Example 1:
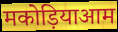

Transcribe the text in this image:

मकोड़ियाआम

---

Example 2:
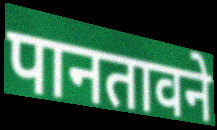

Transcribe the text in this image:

पानतावने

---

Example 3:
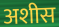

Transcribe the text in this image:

अशीस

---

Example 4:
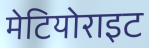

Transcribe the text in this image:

मेटियोराइट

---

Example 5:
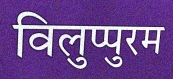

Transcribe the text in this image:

विलुप्पुरम